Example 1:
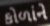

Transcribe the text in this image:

કોળાંને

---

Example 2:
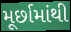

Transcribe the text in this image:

મૂર્છામાંથી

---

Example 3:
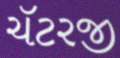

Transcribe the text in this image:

ચૅટરજી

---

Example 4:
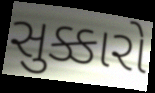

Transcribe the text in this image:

સુક્કારો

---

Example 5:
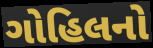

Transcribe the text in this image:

ગોહિલનો